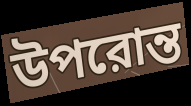
উপরোন্ত